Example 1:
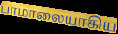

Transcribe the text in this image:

பாமாலையாகிய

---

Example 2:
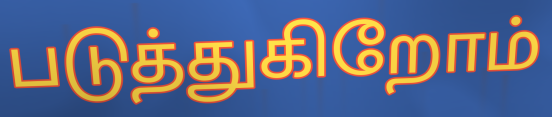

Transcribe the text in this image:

படுத்துகிறோம்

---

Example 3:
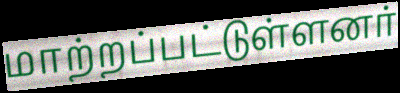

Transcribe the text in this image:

மாற்றப்பட்டுள்ளனர்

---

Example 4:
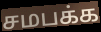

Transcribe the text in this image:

சமபக்க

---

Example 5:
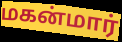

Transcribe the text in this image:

மகன்மார்